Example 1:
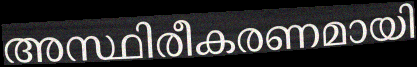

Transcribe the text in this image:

അസ്ഥിരീകരണമായി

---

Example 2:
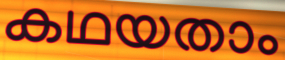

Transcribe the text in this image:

കഥയതാം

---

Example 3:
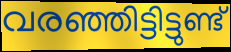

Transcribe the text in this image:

വരഞ്ഞിട്ടിട്ടുണ്ട്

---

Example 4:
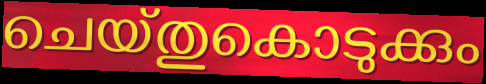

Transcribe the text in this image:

ചെയ്തുകൊടുക്കും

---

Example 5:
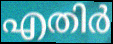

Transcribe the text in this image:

എതിർ